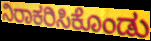
ನಿರಾಕರಿಸಿಕೊಂಡು